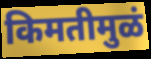
किमतीमुळं